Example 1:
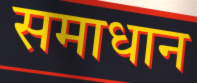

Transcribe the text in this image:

समाधान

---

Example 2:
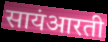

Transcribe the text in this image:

सायंआरती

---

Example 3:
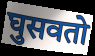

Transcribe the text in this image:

घुसवतो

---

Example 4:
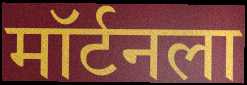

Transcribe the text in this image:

मॉर्टनला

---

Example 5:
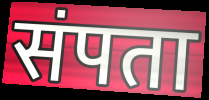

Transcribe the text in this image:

संपता